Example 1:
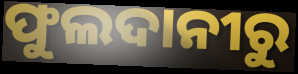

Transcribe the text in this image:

ଫୁଲଦାନୀରୁ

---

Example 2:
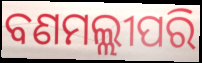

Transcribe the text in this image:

ବଣମଲ୍ଲୀପରି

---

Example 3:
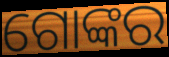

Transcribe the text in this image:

ଗୋଙ୍କର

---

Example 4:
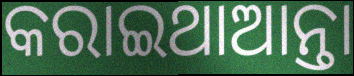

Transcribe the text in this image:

କରାଇଥାଆନ୍ତା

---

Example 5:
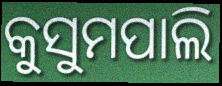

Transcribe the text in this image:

କୁସୁମପାଲି